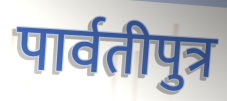
पार्वतीपुत्र